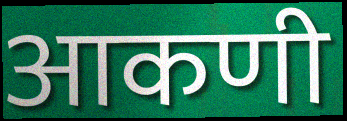
आकणी